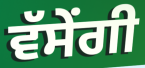
ਵੱਸੇਂਗੀ